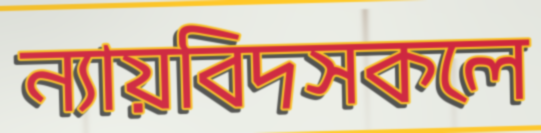
ন্যায়বিদসকলে